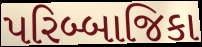
પરિબ્બાજિકા